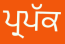
ਪ੍ਰਪੱਕ